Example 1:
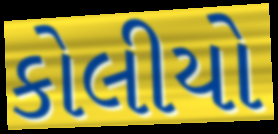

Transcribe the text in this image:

કોલીયો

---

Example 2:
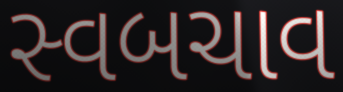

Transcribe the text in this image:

સ્વબચાવ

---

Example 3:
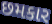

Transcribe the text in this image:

છમકાર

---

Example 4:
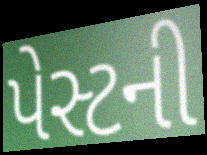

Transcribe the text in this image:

પેસ્ટની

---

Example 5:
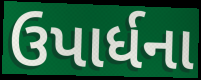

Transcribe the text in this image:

ઉપાર્ધના